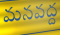
మనవద్ద